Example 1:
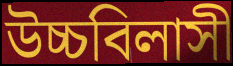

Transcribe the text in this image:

উচ্চবিলাসী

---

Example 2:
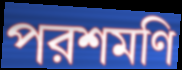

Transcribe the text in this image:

পরশমণি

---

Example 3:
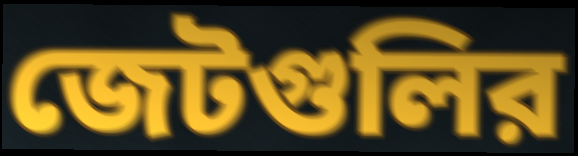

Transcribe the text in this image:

জেটগুলির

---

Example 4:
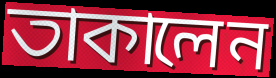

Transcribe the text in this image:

তাকালেন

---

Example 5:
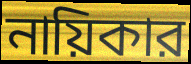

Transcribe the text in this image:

নায়িকার